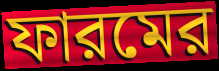
ফারমের